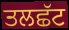
ਤਲਛੱਟ